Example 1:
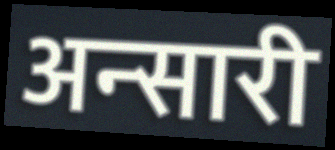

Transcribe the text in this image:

अन्सारी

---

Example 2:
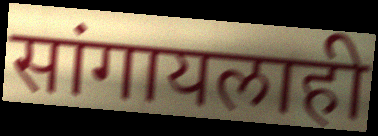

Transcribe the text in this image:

सांगायलाही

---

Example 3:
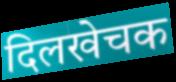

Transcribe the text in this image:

दिलखेचक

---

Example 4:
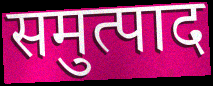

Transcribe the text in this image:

समुत्पाद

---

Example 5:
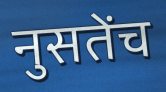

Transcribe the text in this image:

नुसतेंच